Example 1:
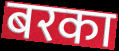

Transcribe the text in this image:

बरका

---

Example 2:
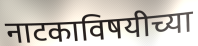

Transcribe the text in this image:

नाटकाविषयीच्या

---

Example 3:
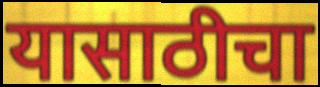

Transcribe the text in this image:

यासाठीचा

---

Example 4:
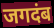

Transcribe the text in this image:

जगदंब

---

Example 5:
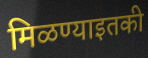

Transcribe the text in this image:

मिळण्याइतकी